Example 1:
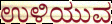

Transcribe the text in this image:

ಉಳಿಯುವ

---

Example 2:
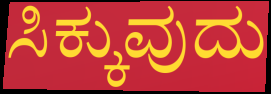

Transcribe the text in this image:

ಸಿಕ್ಕುವುದು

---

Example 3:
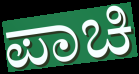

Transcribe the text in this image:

ಪಾಚಿ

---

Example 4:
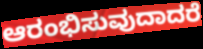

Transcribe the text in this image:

ಆರಂಭಿಸುವುದಾದರೆ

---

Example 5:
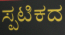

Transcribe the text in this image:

ಸ್ಪಟಿಕದ